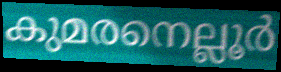
കുമരനെല്ലൂർ